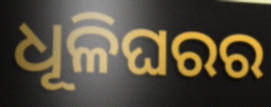
ଧୂଳିଘରର